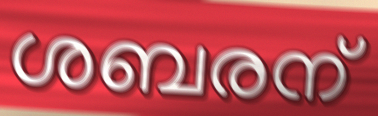
ശബരന്